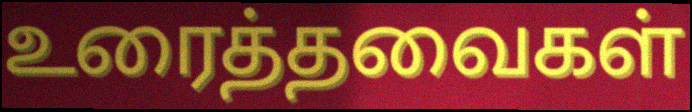
உரைத்தவைகள்